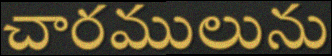
చారములును